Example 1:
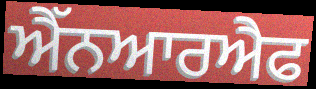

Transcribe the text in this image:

ਐੱਨਆਰਐਫ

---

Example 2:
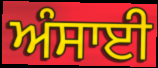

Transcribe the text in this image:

ਅੰਸਾਈ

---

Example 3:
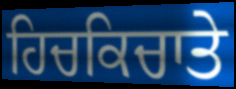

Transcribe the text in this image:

ਹਿਚਕਿਚਾਤੇ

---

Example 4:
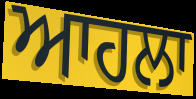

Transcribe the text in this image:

ਆਹਲਾ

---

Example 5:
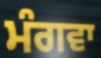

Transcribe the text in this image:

ਮੰਗਵਾ